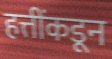
हत्तींकडून